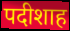
पदीशाह